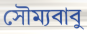
সৌম্যবাবু